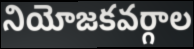
నియోజకవర్గాల